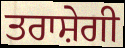
ਤਰਾਸ਼ੇਗੀ